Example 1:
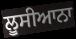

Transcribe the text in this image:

ਲੂਸੀਆਨਾ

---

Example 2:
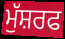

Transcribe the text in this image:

ਮੁੱਸ਼ਰਫ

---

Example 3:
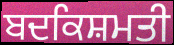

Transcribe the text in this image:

ਬਦਕਿਸ਼ਮਤੀ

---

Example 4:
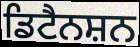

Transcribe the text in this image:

ਡਿਟੈਨਸ਼ਨ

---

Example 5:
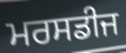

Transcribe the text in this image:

ਮਰਸਡੀਜ